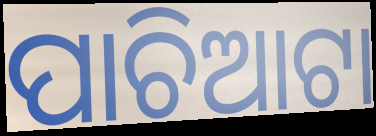
ପାଚିଆଟା